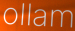
ollam